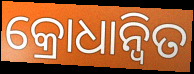
କ୍ରୋଧାନ୍ୱିତ